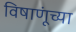
विषाणूंच्या